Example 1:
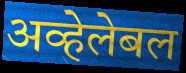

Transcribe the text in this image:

अव्हेलेबल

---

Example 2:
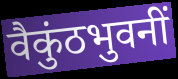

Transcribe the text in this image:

वैकुंठभुवनीं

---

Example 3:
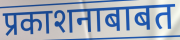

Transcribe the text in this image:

प्रकाशनाबाबत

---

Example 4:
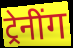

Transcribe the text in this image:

ट्रेनींग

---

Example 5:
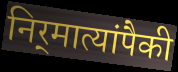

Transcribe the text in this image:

निर्मात्यांपैकी